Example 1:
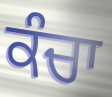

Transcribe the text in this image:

ਕੰਚਾ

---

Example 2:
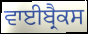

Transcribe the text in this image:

ਵਾਈਬ੍ਰੈਕਸ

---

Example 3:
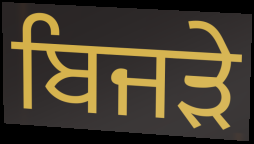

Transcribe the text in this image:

ਬਿਜੜੇ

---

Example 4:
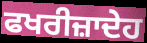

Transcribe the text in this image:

ਫਖਰੀਜ਼ਾਦੇਹ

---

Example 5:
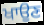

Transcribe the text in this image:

ਖਾਉਣ